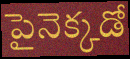
పైనెక్కడో